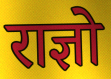
राज्ञो